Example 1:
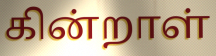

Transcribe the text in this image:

கின்றாள்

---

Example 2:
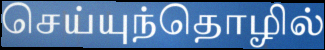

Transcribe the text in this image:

செய்யுந்தொழில்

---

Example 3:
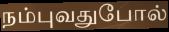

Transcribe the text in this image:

நம்புவதுபோல்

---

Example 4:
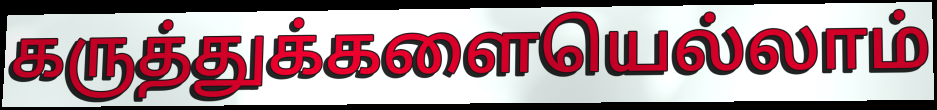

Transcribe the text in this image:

கருத்துக்களையெல்லாம்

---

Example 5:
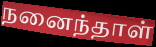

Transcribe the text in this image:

நனைந்தாள்